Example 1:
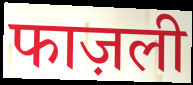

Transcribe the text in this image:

फाज़ली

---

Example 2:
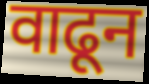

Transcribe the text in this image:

वाढून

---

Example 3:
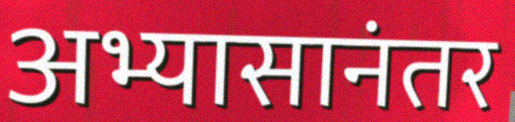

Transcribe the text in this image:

अभ्यासानंतर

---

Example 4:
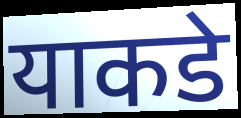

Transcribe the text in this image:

याकडे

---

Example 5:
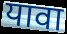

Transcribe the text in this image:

यावा